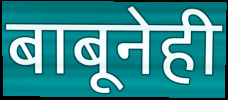
बाबूनेही